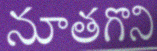
నూతగొని